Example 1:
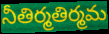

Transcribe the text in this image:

నీతిర్మతిర్మమ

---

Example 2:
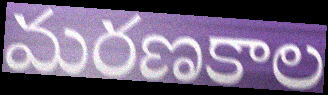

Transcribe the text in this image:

మరణకాల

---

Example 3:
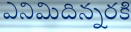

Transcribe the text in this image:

ఎనిమిదిన్నరకి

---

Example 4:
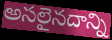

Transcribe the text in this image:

అసలైనదాన్ని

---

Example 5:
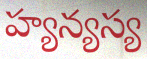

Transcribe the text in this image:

హ్యన్యస్య